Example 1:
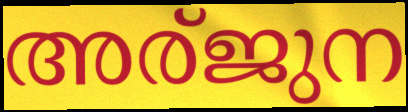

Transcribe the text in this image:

അര്ജുന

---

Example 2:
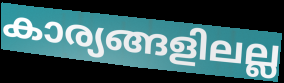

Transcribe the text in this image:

കാര്യങ്ങളിലല്ല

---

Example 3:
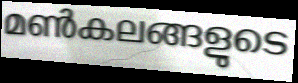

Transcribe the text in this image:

മൺകലങ്ങളുടെ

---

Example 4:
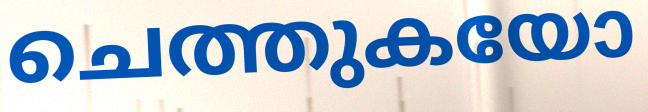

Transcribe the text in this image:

ചെത്തുകയോ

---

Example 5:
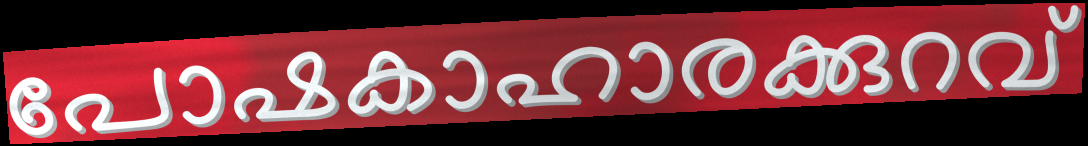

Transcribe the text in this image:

പോഷകാഹാരക്കുറവ്